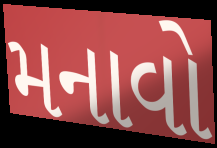
મનાવો